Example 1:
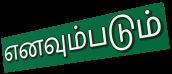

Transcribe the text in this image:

எனவும்படும்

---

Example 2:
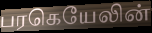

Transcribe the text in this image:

பரகெயேலின்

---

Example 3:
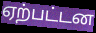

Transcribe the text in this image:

ஏற்பட்டன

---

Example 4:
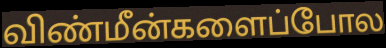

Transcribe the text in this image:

விண்மீன்களைப்போல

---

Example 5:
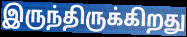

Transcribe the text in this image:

இருந்திருக்கிறது